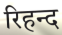
रिहन्द